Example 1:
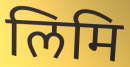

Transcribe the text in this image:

लिमि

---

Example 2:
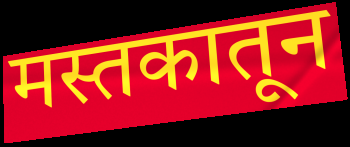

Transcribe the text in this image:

मस्तकातून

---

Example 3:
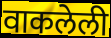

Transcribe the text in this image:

वाकलेली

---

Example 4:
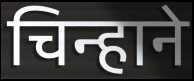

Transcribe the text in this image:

चिन्हाने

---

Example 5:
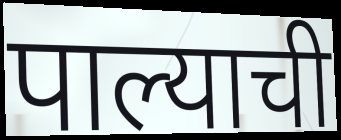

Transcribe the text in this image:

पाल्याची